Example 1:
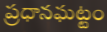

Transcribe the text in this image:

ప్రధానఘట్టం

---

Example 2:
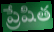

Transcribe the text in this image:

ప్రేషిత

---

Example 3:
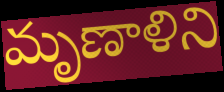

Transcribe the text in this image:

మృణాళిని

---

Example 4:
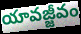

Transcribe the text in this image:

యావజ్జీవం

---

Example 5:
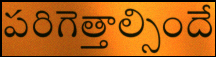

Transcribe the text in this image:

పరిగెత్తాల్సిందే